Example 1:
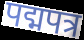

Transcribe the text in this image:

पद्मपत्र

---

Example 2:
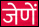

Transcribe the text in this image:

जेणें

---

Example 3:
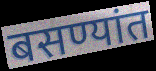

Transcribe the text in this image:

बसण्यांत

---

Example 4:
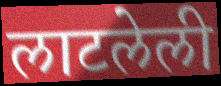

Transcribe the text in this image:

लाटलेली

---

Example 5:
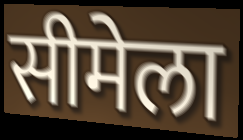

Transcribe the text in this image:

सीमेला